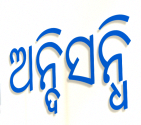
ଅନ୍ଦିସନ୍ଧି